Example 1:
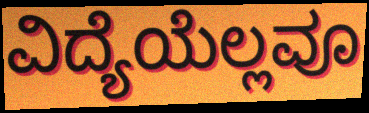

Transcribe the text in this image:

ವಿದ್ಯೆಯೆಲ್ಲವೂ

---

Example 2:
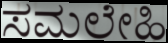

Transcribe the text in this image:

ಸಮಲೇಹಿ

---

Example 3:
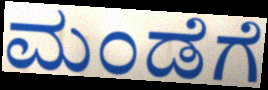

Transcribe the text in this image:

ಮಂಡೆಗೆ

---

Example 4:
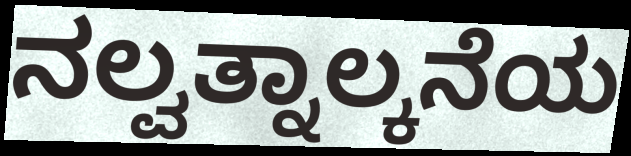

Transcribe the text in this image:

ನಲ್ವತ್ನಾಲ್ಕನೆಯ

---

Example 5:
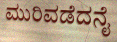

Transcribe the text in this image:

ಮುರಿವಡೆದನೈ